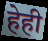
हेही